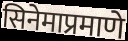
सिनेमाप्रमाणे